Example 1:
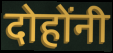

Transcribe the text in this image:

दोहोंनी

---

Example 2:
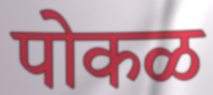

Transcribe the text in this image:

पोकळ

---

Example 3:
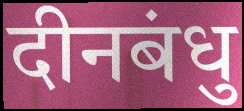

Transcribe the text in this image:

दीनबंधु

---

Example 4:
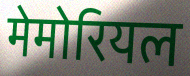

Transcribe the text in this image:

मेमोरियल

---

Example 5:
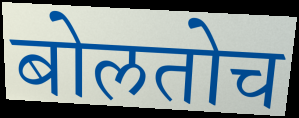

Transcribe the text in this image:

बोलतोच